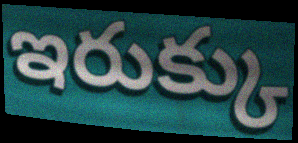
ఇరుక్కు